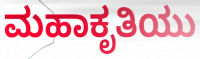
ಮಹಾಕೃತಿಯು